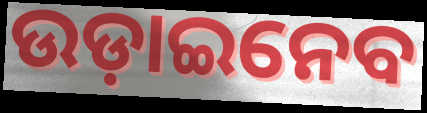
ଉଡ଼ାଇନେବ